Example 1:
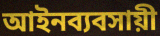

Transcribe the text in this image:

আইনব্যবসায়ী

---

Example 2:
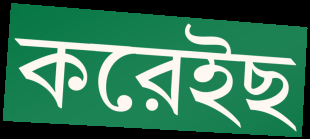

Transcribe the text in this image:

করেইছ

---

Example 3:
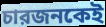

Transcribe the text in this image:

চারজনকেই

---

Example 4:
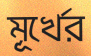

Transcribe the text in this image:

মূর্খের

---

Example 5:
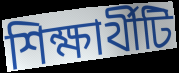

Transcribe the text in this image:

শিক্ষার্থীটি